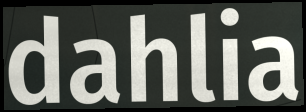
dahlia